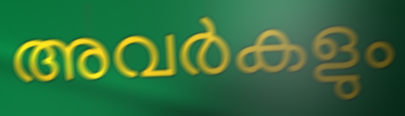
അവർകളും